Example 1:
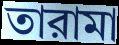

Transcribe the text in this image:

তারামা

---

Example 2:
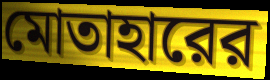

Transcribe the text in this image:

মোতাহারের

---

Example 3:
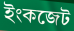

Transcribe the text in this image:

ইংকজেট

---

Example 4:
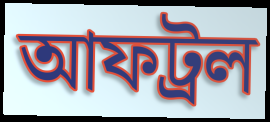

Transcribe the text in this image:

আফট্রল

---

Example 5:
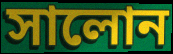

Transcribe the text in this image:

সালোন